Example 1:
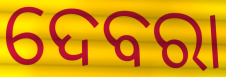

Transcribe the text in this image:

ଦେବରା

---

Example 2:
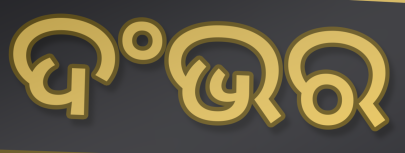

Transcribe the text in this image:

ଦଂଭର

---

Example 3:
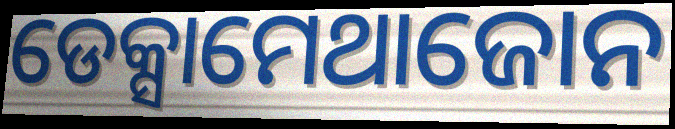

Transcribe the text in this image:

ଡେକ୍ସାମେଥାଜୋନ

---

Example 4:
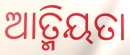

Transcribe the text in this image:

ଆତ୍ମିୟତା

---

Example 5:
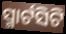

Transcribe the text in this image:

ସ୍ମାର୍ଟସିଟି